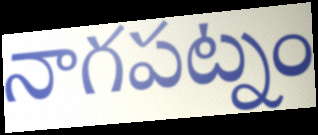
నాగపట్నం